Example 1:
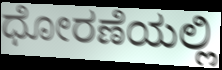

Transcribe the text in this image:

ಧೋರಣೆಯಲ್ಲಿ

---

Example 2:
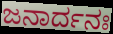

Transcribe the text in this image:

ಜನಾರ್ದನಃ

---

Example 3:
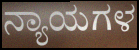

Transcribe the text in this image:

ನ್ಯಾಯಗಳ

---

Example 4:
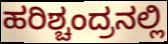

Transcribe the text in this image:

ಹರಿಶ್ಚಂದ್ರನಲ್ಲಿ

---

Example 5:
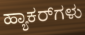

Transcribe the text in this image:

ಹ್ಯಾಕರ್‌ಗಳು